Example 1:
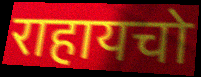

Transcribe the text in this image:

राहायचो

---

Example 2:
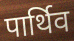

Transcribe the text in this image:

पार्थिव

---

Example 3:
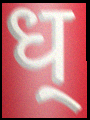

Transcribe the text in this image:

ध्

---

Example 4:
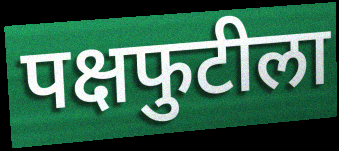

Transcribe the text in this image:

पक्षफुटीला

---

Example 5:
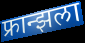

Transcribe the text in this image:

फ्रान्झला